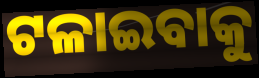
ଟଳାଇବାକୁ